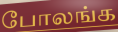
போலங்க